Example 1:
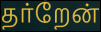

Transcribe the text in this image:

தர்றேன்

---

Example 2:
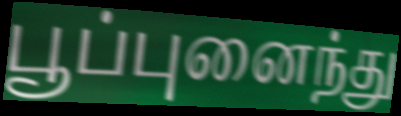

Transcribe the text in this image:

பூப்புனைந்து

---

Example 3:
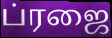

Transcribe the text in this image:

ப்ரஜை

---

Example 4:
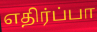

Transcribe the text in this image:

எதிர்ப்பா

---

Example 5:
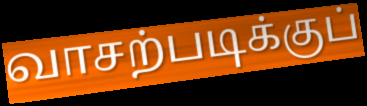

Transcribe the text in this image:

வாசற்படிக்குப்